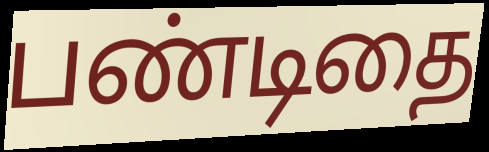
பண்டிதை